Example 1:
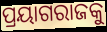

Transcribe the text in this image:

ପ୍ରୟାଗରାଜକୁ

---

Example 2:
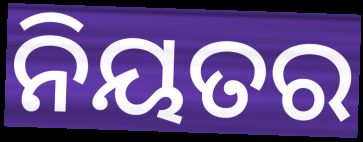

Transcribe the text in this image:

ନିୟତର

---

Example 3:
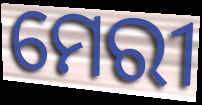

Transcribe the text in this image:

ମେରୀ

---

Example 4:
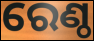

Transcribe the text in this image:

ରେଣ୍ଠ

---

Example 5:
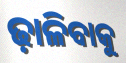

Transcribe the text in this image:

ଢ଼ାଳିବାକୁ